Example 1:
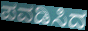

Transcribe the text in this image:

ಪವಡಿಸಿದ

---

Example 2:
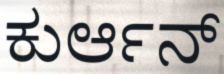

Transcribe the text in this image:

ಕುರ್ಆನ್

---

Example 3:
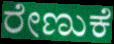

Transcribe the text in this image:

ರೇಣುಕೆ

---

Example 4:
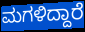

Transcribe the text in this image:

ಮಗಳಿದ್ದಾರೆ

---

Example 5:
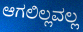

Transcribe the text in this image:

ಆಗಲಿಲ್ಲವಲ್ಲ